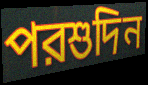
পরশুদিন